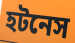
হটনেস